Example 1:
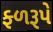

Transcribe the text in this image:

ફ્ળરૂપે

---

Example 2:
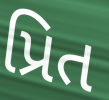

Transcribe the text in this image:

પ્રિત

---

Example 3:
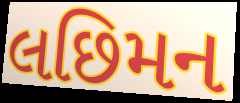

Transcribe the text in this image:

લછિમન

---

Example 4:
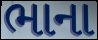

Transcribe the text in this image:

ભાના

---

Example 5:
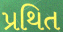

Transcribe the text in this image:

પ્રથિત